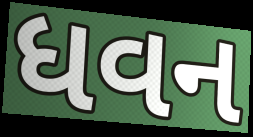
ધવન